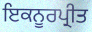
ਇਕਨੂਰਪ੍ਰੀਤ